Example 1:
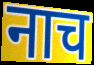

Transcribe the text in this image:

नाच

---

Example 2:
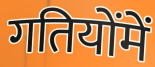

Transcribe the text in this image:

गतियोंमें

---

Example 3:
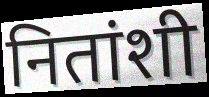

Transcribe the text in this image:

नितांशी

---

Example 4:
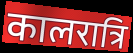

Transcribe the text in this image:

कालरात्रि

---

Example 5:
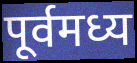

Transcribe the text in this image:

पूर्वमध्य